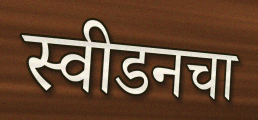
स्वीडनचा